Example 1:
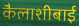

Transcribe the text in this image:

कैलाशीबाई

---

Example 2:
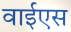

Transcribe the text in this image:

वाईएस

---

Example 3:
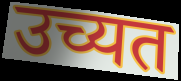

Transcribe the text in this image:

उच्यत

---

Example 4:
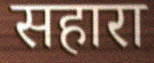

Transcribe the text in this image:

सहारा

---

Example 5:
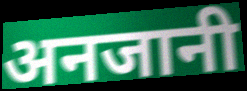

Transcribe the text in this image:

अनजानी